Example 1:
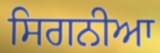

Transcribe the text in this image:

ਸਿਗਨੀਆ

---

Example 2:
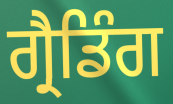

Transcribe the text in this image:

ਗ੍ਰੈਡਿੰਗ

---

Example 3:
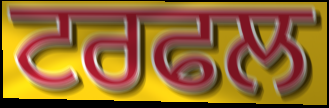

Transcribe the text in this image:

ਟਰਫਲ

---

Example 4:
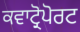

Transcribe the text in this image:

ਕਵਾਟ੍ਰੋਪੋਰਟ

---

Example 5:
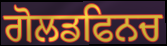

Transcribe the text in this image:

ਗੋਲਡਫਿਨਚ